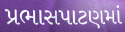
પ્રભાસપાટણમાં